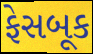
ફેસબૂક